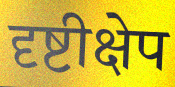
दृष्टीक्षेप